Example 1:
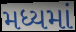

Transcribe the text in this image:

મધ્યમાં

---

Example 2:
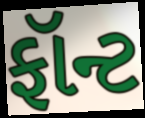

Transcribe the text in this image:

ફૉન્ટ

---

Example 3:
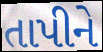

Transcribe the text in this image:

તાપીને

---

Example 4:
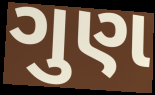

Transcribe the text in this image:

ગુણ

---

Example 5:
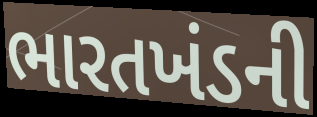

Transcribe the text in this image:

ભારતખંડની